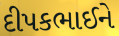
દીપકભાઈને